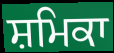
ਸ਼ਮਿਕਾ